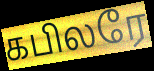
கபிலரே